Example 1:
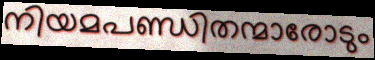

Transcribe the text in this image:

നിയമപണ്ഡിതന്മാരോടും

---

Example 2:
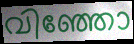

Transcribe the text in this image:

വിഞ്ഞോ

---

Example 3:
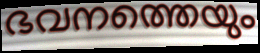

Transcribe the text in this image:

ഭവനത്തെയും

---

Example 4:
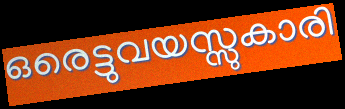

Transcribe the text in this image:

ഒരെട്ടുവയസ്സുകാരി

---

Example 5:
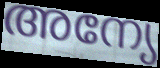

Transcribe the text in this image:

അന്യേ